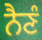
ਨੈਣੰ